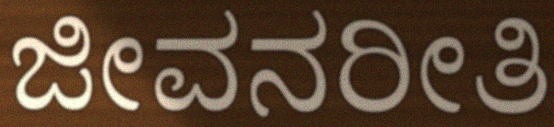
ಜೀವನರೀತಿ